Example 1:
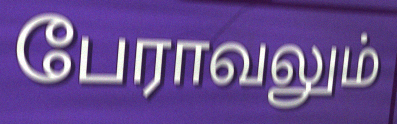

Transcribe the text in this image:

பேராவலும்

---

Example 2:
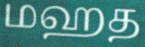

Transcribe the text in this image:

மஹத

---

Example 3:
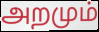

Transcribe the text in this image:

அறமும்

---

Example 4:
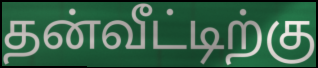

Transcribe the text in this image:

தன்வீட்டிற்கு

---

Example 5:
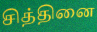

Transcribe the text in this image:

சித்தினை